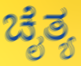
ಚೈತ್ಯ